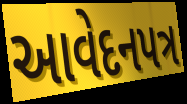
આવેદનપત્ર